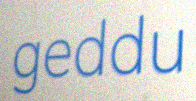
geddu